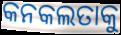
କନକଲତାକୁ